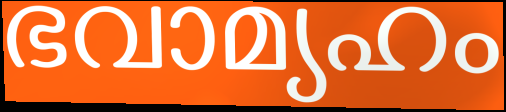
ഭവാമ്യഹം